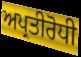
ਅਪ੍ਰਤੀਰੋਧੀ